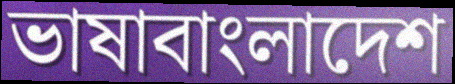
ভাষাবাংলাদেশ